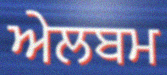
ਅੇਲਬਮ